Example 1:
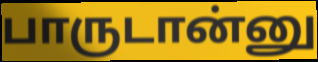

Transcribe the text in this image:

பாருடான்னு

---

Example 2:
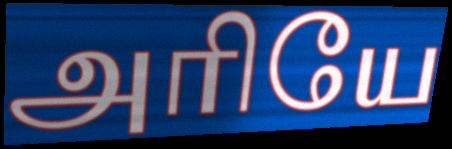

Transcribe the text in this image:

அரியே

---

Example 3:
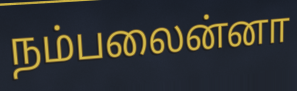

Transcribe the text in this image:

நம்பலைன்னா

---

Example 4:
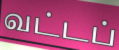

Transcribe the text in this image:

வட்டப்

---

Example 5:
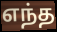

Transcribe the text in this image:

எந்த